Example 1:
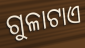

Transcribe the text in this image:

ଗୁଳାଟାଏ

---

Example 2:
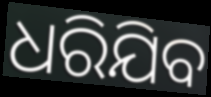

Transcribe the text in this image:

ଧରିଯିବ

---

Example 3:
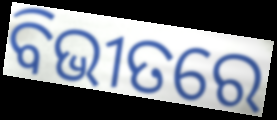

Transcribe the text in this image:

ବିଭୀତରେ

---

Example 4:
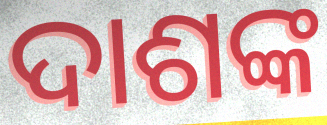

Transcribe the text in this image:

ଦାଶଙ୍କ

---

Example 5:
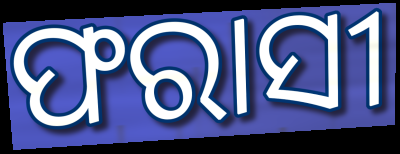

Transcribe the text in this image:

ଫରାସୀ